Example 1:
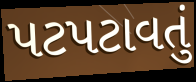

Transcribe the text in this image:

પટપટાવતું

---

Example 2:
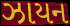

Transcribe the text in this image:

ઝાયન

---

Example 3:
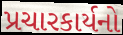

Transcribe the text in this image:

પ્રચારકાર્યનો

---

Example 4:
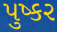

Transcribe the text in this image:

પુષ્કર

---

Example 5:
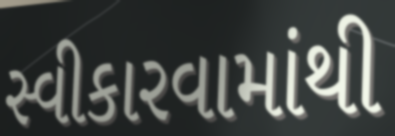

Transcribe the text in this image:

સ્વીકારવામાંથી